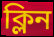
ক্লিন